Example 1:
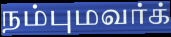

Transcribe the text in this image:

நம்புமவர்க்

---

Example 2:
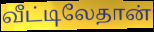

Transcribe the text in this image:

வீட்டிலேதான்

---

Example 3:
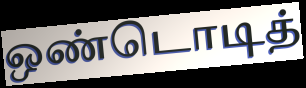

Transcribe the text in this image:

ஒண்டொடித்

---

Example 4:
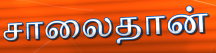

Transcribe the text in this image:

சாலைதான்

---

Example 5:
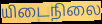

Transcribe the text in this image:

யிடைநிலை